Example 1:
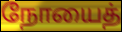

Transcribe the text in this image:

நோயைத்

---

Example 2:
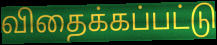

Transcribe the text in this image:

விதைக்கப்பட்டு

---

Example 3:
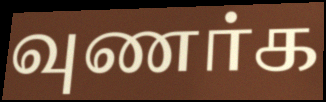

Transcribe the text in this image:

வுணர்க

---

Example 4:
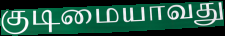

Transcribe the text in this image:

குடிமையாவது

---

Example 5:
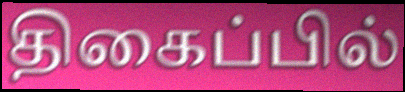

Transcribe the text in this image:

திகைப்பில்